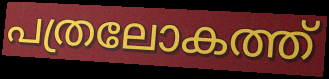
പത്രലോകത്ത്